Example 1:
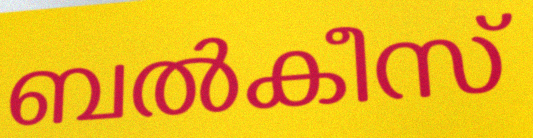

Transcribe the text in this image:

ബൽകീസ്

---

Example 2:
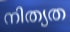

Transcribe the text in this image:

നിത്യത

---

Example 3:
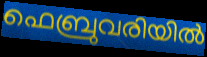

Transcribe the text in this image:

ഫെബ്രുവരിയിൽ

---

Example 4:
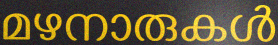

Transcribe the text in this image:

മഴനാരുകൾ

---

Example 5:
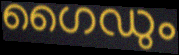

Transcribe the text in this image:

ഗൈഡും